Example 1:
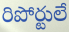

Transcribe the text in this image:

రిపోర్టులే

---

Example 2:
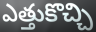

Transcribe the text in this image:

ఎత్తుకొచ్చి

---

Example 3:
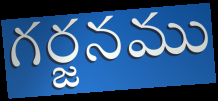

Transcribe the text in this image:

గర్జనము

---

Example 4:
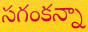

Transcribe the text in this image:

సగంకన్నా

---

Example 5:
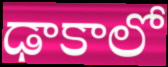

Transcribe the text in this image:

ఢాకాలో